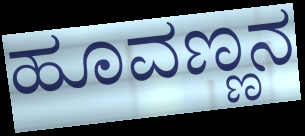
ಹೂವಣ್ಣನ